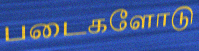
படைகளோடு